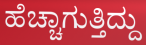
ಹೆಚ್ಚಾಗುತ್ತಿದ್ದು